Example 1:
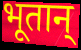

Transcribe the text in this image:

भूतान्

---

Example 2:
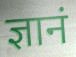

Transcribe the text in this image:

ज्ञानं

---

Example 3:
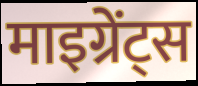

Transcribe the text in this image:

माइग्रेंट्स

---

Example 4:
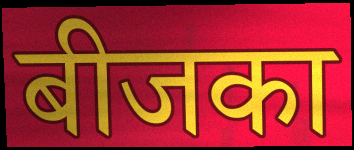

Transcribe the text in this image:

बीजका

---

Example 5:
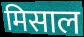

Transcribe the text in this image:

मिसाल